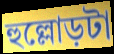
হুল্লোড়টা